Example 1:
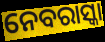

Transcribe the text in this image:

ନେବରାସ୍କା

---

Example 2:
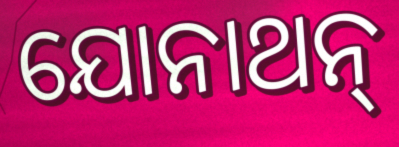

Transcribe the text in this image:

ଯୋନାଥନ୍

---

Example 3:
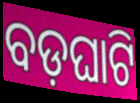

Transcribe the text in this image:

ବଡ଼ଘାଟି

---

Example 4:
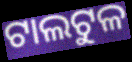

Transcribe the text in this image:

ଟାଲଟୁଳ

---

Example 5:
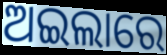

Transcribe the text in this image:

ଅଇଲାରେ